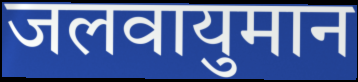
जलवायुमान